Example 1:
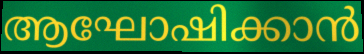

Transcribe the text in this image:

ആഘോഷിക്കാൻ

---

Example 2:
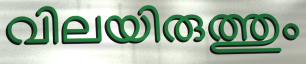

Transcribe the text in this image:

വിലയിരുത്തും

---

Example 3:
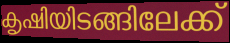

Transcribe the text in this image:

കൃഷിയിടങ്ങിലേക്ക്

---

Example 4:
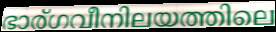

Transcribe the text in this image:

ഭാര്ഗവീനിലയത്തിലെ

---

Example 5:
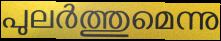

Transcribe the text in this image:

പുലർത്തുമെന്നു